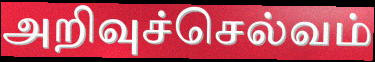
அறிவுச்செல்வம்